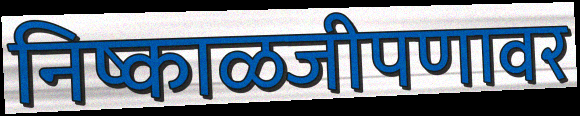
निष्काळजीपणावर